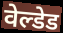
वेल्डेड